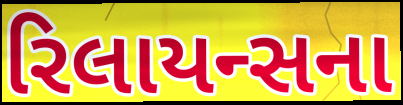
રિલાયન્સના